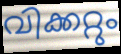
വിക്കറ്റും